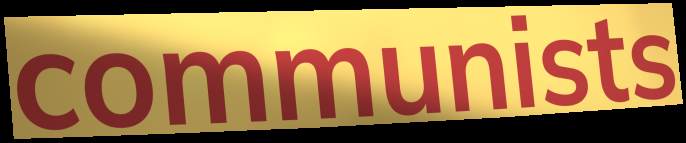
communists